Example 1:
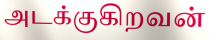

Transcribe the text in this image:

அடக்குகிறவன்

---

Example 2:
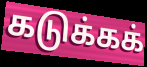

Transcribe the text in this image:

கடுக்கக்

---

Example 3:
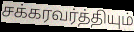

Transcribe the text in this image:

சக்கரவர்த்தியும்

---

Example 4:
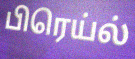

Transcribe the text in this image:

பிரெய்ல்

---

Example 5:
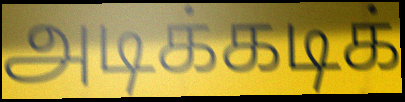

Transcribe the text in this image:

அடிக்கடிக்